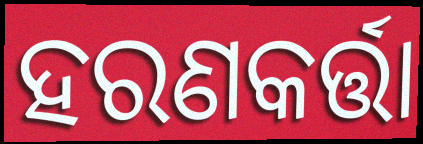
ହରଣକର୍ତ୍ତା